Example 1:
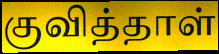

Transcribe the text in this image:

குவித்தாள்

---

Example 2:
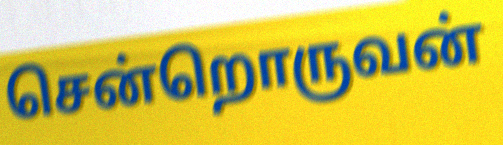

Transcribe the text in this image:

சென்றொருவன்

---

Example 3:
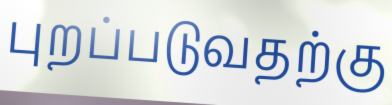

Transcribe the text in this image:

புறப்படுவதற்கு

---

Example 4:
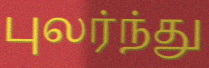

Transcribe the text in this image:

புலர்ந்து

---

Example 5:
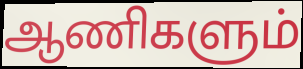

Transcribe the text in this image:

ஆணிகளும்